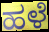
ಹಳೆ